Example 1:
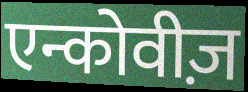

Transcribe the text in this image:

एन्कोवीज़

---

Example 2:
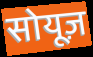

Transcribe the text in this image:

सोयूज़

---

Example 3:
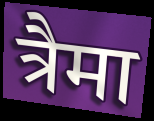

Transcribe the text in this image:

त्रैमा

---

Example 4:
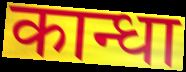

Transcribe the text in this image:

कान्धा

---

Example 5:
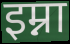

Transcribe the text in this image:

इम्ना